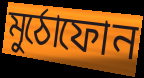
মুঠোফোন